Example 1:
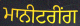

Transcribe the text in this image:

ਮਾਨੀਟਰੀਂਗ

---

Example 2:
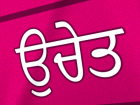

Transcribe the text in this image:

ਉਚੇਤ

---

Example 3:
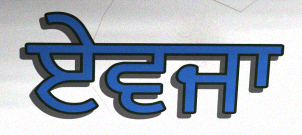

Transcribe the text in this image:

ਏਵਜਾ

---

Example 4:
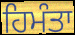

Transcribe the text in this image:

ਹਿਮੰਤਾ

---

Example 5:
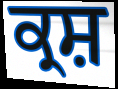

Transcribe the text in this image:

ਕ੍ਰਸ਼